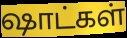
ஷாட்கள்